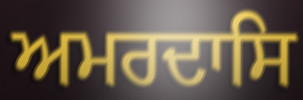
ਅਮਰਦਾਸਿ